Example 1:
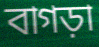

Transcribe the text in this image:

বাগড়া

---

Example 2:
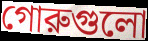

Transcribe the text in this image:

গোরুগুলো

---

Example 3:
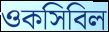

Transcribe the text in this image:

ওকসিবিল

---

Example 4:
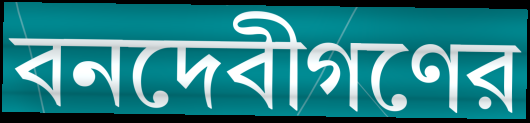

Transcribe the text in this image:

বনদেবীগণের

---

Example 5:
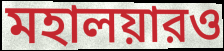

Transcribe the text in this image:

মহালয়ারও